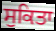
ਸੁਕਿਤਾ